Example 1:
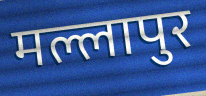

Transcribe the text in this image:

मल्लापुर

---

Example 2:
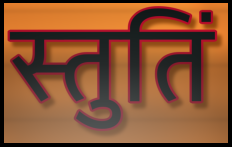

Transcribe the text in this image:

स्तुतिं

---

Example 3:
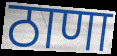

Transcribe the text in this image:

ठाणा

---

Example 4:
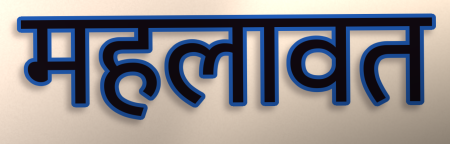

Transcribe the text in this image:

महलावत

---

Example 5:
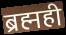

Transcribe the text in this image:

ब्रह्मही